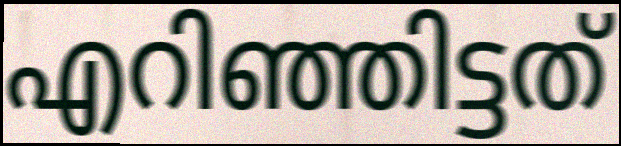
എറിഞ്ഞിട്ടത്